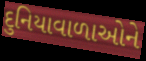
દુનિયાવાળાઓને